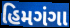
હિમગંગા